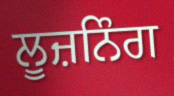
ਲੂਜ਼ਨਿੰਗ